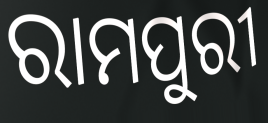
ରାମପୁରୀ